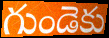
గుండెకు